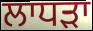
ਲਾਧੜਾ